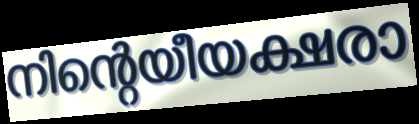
നിന്റെയീയക്ഷരാ